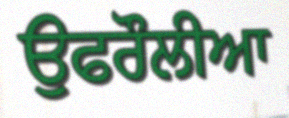
ਉਫਰੌਲੀਆ